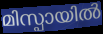
മിസ്പായിൽ